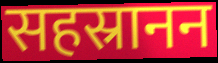
सहस्रानन